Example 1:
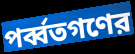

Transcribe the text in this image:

পর্ব্বতগণের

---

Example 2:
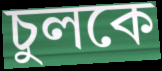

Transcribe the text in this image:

চুলকে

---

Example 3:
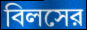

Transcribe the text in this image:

বিলসের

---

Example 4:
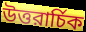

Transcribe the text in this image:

উত্তরার্চিক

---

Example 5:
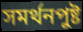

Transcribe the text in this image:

সমর্থনপুষ্ট